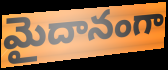
మైదానంగా